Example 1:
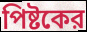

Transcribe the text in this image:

পিষ্টকের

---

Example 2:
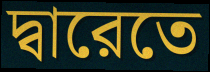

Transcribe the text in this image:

দ্বারেতে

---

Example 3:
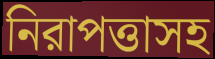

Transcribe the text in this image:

নিরাপত্তাসহ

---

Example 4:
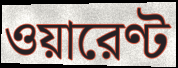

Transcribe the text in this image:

ওয়ারেণ্ট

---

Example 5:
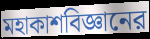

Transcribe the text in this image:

মহাকাশবিজ্ঞানের